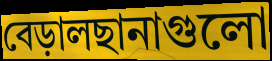
বেড়ালছানাগুলো